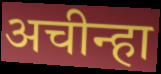
अचीन्हा